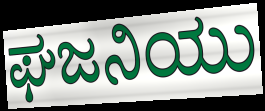
ಘಜನಿಯು